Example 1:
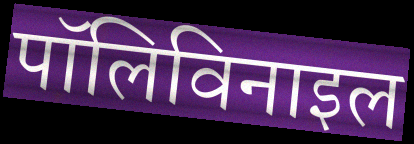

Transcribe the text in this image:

पॉलिविनाइल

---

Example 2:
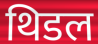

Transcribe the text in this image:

थिडल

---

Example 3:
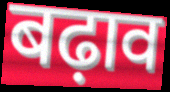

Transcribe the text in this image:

बढ़ाव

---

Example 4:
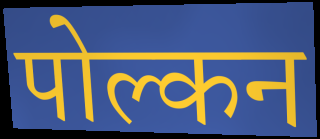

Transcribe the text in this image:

पोल्कन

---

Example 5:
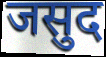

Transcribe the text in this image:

जसुद